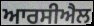
ਆਰਸੀਐਲ